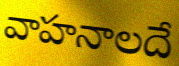
వాహనాలదే